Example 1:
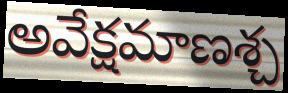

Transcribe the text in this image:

అవేక్షమాణశ్చ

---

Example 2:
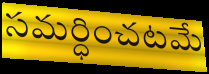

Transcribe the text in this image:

సమర్ధించటమే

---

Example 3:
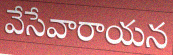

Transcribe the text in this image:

వేసేవారాయన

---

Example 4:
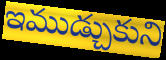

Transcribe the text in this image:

ఇముడ్చుకుని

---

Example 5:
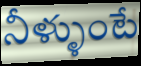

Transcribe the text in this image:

నీళ్ళుంటే